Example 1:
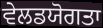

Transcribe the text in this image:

ਵੇਲਡਯੋਗਤਾ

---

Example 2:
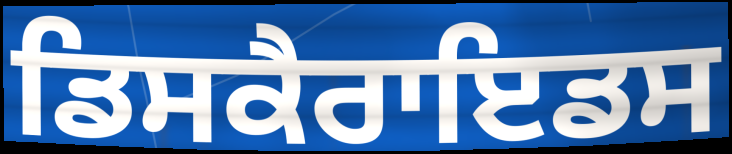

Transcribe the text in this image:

ਡਿਸਕੈਰਾਇਡਸ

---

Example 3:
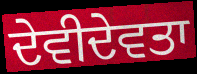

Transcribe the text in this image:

ਦੇਵੀਦੇਵਤਾ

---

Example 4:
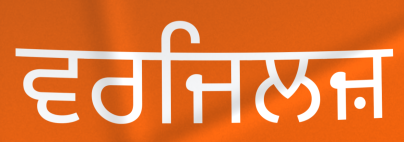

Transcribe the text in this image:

ਵਰਜਿਲਜ਼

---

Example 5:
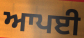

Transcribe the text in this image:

ਆਪਈ